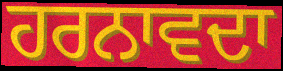
ਹਰਨਾਵਦਾ